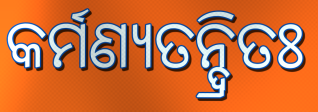
କର୍ମଣ୍ୟତନ୍ଦ୍ରିତଃ